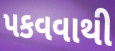
પકવવાથી